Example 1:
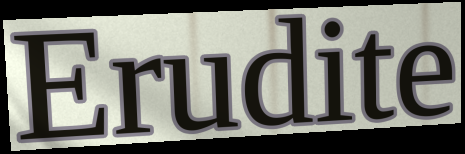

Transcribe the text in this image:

Erudite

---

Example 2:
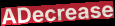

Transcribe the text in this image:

ADecrease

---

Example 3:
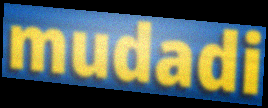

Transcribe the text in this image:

mudadi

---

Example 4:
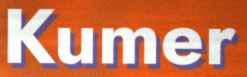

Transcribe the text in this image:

Kumer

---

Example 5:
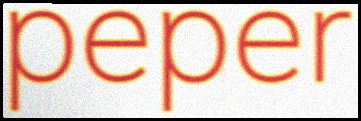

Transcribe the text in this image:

peper